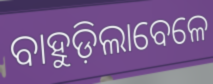
ବାହୁଡ଼ିଲାବେଳେ